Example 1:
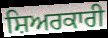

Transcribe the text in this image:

ਸ਼ਿਅਰਕਾਰੀ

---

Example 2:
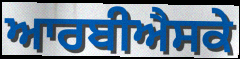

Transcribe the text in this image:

ਆਰਬੀਐਸਕੇ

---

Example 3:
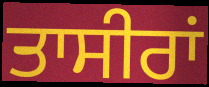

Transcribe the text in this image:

ਤਾਸੀਰਾਂ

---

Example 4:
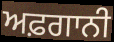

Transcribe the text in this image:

ਅਫ਼ਗਾਨੀ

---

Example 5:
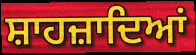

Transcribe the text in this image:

ਸ਼ਾਹਜ਼ਾਦਿਆਂ